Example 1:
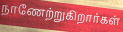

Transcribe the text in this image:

நாணேற்றுகிறார்கள்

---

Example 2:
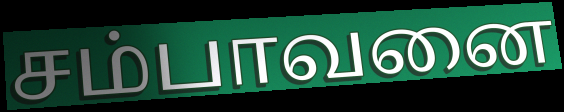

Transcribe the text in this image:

சம்பாவனை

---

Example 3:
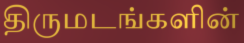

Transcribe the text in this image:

திருமடங்களின்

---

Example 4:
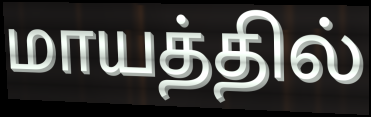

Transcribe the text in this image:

மாயத்தில்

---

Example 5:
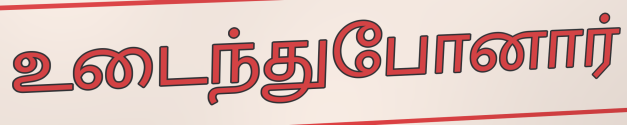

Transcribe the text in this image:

உடைந்துபோனார்